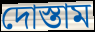
দোস্তাম